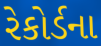
રેકોર્ડના